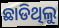
ଛାଡିଥିଲୁ